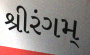
શ્રીરંગમ્